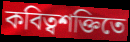
কবিত্বশক্তিতে